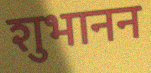
शुभानन